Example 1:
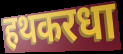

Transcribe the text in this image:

हथकरधा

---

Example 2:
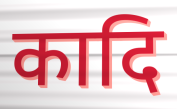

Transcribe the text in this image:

कादि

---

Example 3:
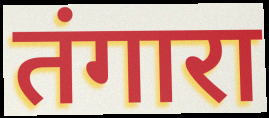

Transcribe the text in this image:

तंगारा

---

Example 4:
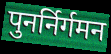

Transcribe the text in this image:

पुनर्निर्गमन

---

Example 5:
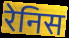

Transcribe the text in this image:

रेनिस